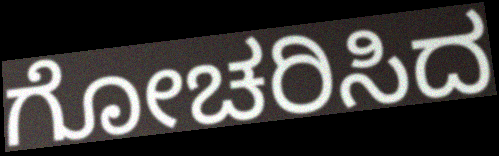
ಗೋಚರಿಸಿದ